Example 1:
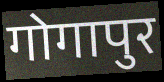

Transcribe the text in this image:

गोगापुर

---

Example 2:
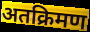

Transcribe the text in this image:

अतक्रिमण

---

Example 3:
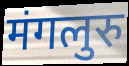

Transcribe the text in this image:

मंगलुरु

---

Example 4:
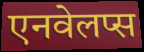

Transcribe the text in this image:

एनवेलप्स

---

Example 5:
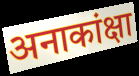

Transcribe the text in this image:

अनाकांक्षा